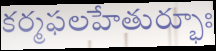
కర్మఫలహేతుర్భూః